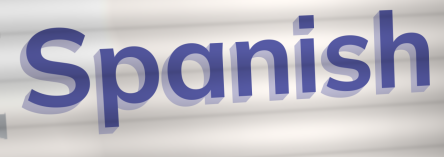
Spanish